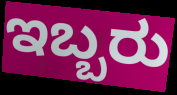
ಇಬ್ಬರು